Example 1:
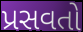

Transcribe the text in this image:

પ્રસવતો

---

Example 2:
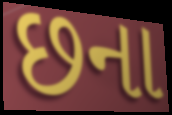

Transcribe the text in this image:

છના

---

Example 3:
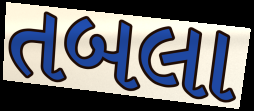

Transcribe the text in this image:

તબલા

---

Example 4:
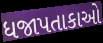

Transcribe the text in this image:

ધજાપતાકાઓ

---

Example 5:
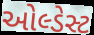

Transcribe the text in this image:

ઓલ્ડેસ્ટ